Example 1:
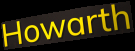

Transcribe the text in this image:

Howarth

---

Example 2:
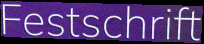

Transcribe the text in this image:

Festschrift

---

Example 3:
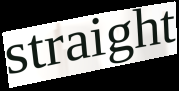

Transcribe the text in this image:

straight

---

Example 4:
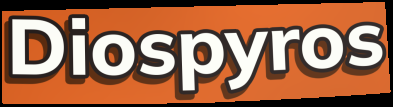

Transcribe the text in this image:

Diospyros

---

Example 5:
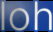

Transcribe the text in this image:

loh